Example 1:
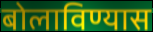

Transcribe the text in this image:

बोलाविण्यास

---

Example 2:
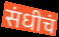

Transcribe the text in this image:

संधीचं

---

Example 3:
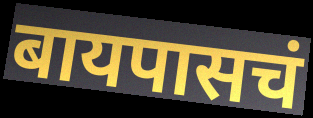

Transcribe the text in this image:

बायपासचं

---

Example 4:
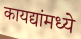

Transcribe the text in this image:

कायद्यांमध्ये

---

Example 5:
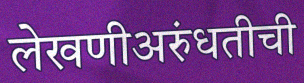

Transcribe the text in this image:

लेखणीअरुंधतीची